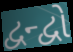
દ્વન્દ્વો